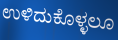
ಉಳಿದುಕೊಳ್ಳಲೂ